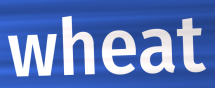
wheat